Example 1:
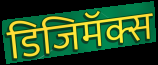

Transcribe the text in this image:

डिजिमॅक्स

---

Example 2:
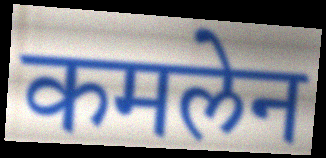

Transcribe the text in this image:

कमलेन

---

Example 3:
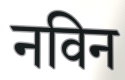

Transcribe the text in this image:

नविन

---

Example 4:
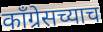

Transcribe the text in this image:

काँग्रेसच्याच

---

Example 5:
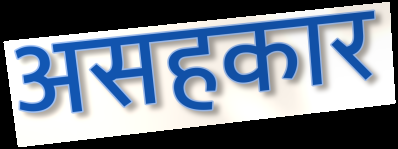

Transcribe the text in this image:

असहकार